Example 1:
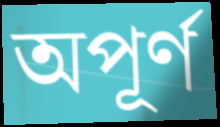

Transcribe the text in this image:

অপূর্ণ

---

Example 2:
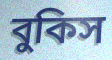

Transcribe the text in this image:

বুকিস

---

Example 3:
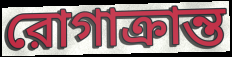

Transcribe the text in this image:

রোগাক্রান্ত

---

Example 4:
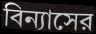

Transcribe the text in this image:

বিন্যাসের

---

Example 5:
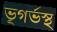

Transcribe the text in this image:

ভূগর্ভস্থ